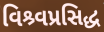
વિશ્ર્વપ્રસિદ્ધ